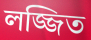
লজ্জিত